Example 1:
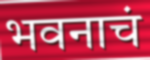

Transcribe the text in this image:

भवनाचं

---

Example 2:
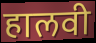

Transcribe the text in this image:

हालवी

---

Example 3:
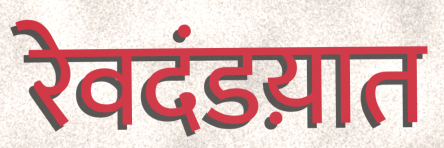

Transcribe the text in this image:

रेवदंडय़ात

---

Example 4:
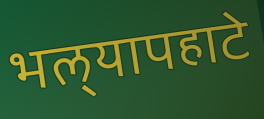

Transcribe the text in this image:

भल्यापहाटे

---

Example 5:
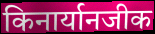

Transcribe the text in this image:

किनार्यानजीक